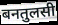
बनतुलसी